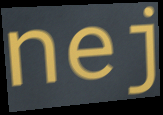
nej